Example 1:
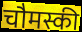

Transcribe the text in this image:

चौमस्की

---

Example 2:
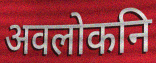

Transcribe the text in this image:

अवलोकनि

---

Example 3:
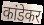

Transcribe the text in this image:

कांडेकर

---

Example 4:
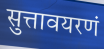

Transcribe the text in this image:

सुत्तावयरणं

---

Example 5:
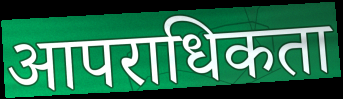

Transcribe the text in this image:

आपराधिकता